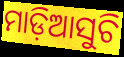
ମାଡ଼ିଆସୁଚି